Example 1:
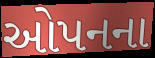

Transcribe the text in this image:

ઓપનના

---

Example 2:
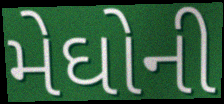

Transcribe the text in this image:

મેઘોની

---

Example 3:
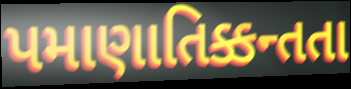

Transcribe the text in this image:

પમાણાતિક્કન્તતા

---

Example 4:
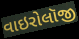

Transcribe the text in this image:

વાઇરોલૉજી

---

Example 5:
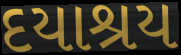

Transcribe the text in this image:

દયાશ્રય